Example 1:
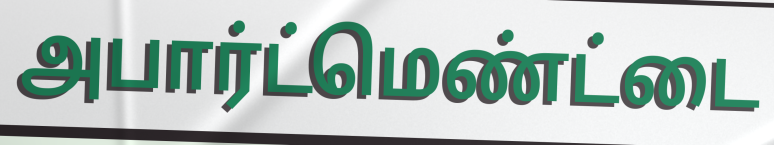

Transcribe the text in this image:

அபார்ட்மெண்ட்டை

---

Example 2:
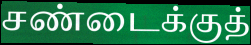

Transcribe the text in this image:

சண்டைக்குத்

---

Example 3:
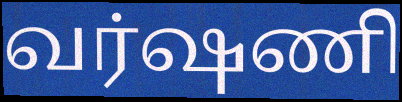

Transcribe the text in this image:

வர்ஷணி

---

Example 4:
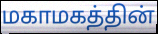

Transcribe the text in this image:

மகாமகத்தின்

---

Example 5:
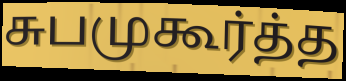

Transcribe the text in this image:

சுபமுகூர்த்த